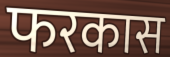
फरकास